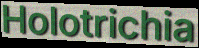
Holotrichia